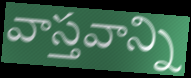
వాస్తవాన్ని